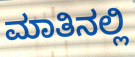
ಮಾತಿನಲ್ಲಿ